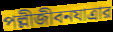
পল্লীজীবনযাত্রার